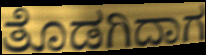
ತೊಡಗಿದಾಗ